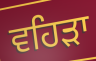
ਵਹਿੜਾ